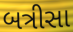
બત્રીસા